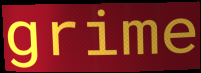
grime